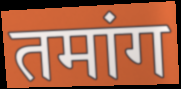
तमांग